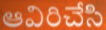
ఆవిరిచేసి